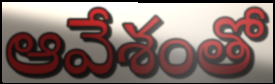
ఆవేశంతో